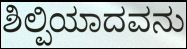
ಶಿಲ್ಪಿಯಾದವನು